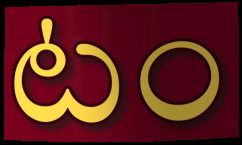
టం